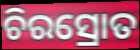
ଚିରସ୍ରୋତ